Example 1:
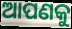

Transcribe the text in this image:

ଆପଣକୁ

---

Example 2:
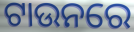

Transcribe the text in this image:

ଟାଉନରେ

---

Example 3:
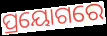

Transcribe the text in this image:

ପ୍ରୟୋଗରେ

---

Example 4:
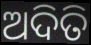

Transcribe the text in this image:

ଅଦିତି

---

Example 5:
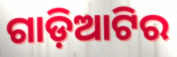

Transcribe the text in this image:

ଗାଡ଼ିଆଟିର